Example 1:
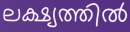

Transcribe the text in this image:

ലക്ഷ്യത്തിൽ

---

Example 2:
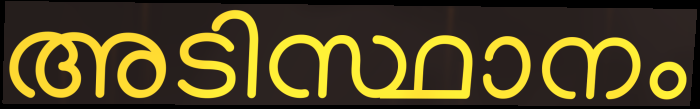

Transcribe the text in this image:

അടിസ്ഥാനം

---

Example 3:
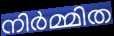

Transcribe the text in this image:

നിർമ്മിത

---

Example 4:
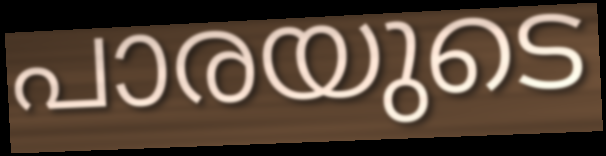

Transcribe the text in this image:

പാരയുടെ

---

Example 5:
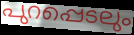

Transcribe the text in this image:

പുറപ്പെടലും